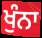
ਖੁੰਨਾ